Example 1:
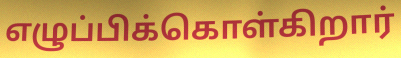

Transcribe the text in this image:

எழுப்பிக்கொள்கிறார்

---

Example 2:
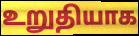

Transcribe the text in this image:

உறுதியாக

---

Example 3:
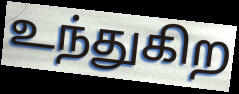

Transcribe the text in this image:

உந்துகிற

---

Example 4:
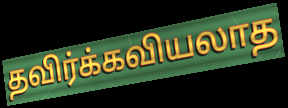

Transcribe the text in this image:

தவிர்க்கவியலாத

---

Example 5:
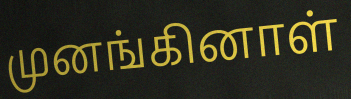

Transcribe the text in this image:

முனங்கினாள்